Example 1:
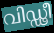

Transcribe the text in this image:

വിഡ്ഢീ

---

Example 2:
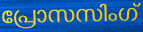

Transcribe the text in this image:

പ്രോസസിംഗ്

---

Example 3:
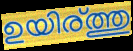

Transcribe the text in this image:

ഉയിര്ത്തു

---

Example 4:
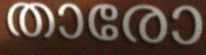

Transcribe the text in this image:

താരോ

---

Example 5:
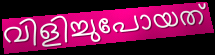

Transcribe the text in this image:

വിളിച്ചുപോയത്